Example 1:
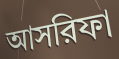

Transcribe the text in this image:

আসরিফা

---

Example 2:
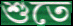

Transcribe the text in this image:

শুতে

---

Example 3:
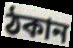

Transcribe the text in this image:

ঠকান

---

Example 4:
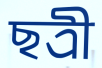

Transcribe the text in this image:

ছত্রী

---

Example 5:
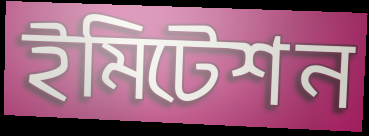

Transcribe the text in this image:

ইমিটেশন